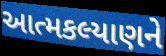
આત્મકલ્યાણને